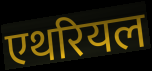
एथरियल